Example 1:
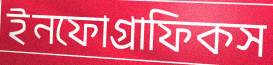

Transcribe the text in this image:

ইনফোগ্রাফিকস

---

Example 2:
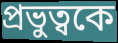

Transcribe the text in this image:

প্রভুত্বকে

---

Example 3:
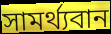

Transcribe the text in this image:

সামর্থ্যবান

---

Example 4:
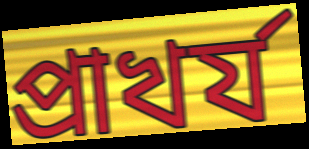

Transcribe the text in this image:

প্রাখর্য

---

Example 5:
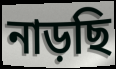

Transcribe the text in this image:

নাড়ছি